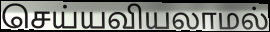
செய்யவியலாமல்